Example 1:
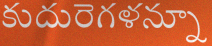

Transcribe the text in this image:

కుదురెగళన్నూ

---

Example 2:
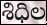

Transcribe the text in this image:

శిధిల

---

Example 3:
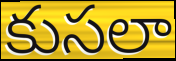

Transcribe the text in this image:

కుసలా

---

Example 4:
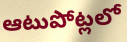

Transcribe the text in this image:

ఆటుపోట్లలో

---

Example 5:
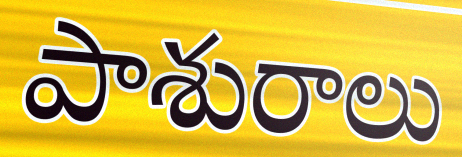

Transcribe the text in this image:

పాశురాలు